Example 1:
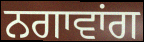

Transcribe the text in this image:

ਨਗਾਵਾਂਗ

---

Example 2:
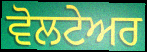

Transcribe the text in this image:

ਵੋਲਟੇਅਰ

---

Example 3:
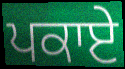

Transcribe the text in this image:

ਪਕਾਏ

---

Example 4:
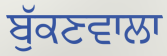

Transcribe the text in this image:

ਬੁੱਕਣਵਾਲਾ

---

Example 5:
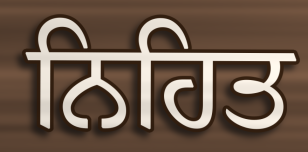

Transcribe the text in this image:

ਨਿਹਿਤ